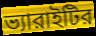
ভ্যারাইটির